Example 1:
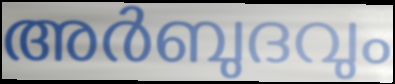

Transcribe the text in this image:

അർബുദവും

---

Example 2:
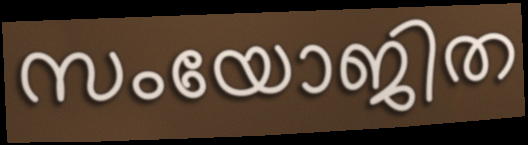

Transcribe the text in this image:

സംയോജിത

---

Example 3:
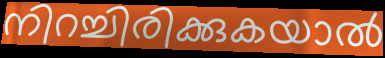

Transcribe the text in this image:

നിറച്ചിരിക്കുകയാൽ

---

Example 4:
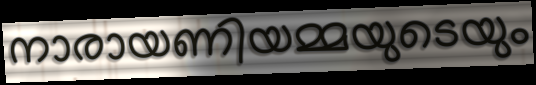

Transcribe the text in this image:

നാരായണിയമ്മയുടെയും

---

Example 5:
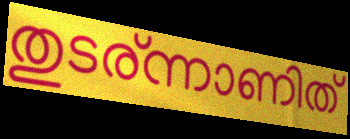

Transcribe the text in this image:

തുടര്ന്നാണിത്